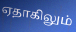
ஏதாகிலும்